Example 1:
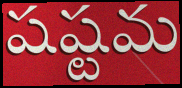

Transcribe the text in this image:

షష్టమ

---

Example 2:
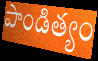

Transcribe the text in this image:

పాండిత్యం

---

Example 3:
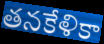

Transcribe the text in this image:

తనకేళికా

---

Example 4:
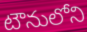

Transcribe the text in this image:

టౌనులోని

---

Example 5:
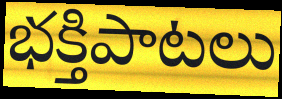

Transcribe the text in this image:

భక్తిపాటలు